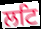
ਲਟਿ